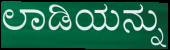
ಲಾಡಿಯನ್ನು